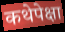
कथेपेक्षा